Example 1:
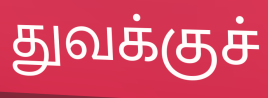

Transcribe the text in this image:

துவக்குச்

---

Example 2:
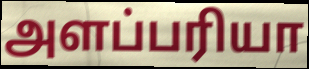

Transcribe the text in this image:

அளப்பரியா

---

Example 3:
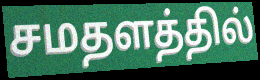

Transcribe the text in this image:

சமதளத்தில்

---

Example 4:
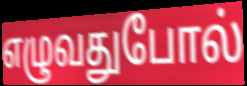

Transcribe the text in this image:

எழுவதுபோல்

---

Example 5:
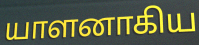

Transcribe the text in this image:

யாளனாகிய